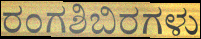
ರಂಗಶಿಬಿರಗಳು